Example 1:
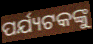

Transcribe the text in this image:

ପର୍ଯ୍ୟଟକଙ୍କୁ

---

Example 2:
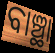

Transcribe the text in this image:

ବାଞ୍ଛା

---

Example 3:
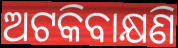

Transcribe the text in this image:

ଅଟକିବାକ୍ଷଣି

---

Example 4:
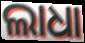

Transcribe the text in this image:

ଲାଧା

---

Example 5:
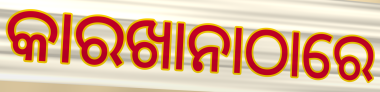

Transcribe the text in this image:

କାରଖାନାଠାରେ